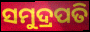
ସମୁଦ୍ରପତି